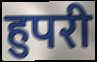
हुपरी